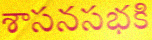
శాసనసభకి